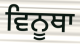
ਵਿਨੂਥਾ